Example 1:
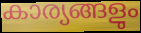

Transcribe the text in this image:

കാര്യങ്ങളും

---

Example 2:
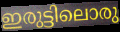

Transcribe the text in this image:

ഇരുട്ടിലൊരു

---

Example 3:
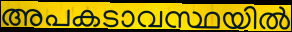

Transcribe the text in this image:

അപകടാവസ്ഥയിൽ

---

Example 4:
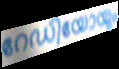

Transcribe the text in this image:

റേഡിയോയും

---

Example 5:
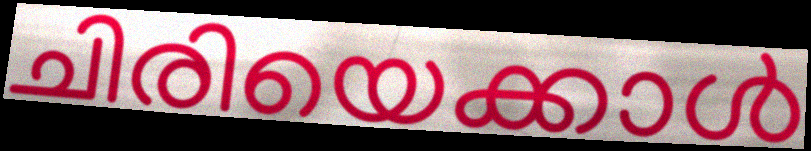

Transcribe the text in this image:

ചിരിയെക്കാൾ